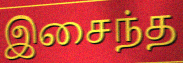
இசைந்த